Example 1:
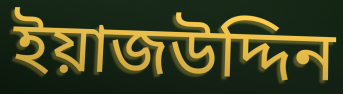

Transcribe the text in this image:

ইয়াজউদ্দিন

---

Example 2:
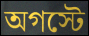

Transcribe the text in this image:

অগস্টে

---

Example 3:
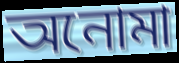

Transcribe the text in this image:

অনোমা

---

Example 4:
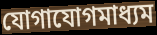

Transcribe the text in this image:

যোগাযোগমাধ্যম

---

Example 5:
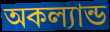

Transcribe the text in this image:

অকল্যান্ড